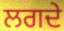
ਲਗਦੇ